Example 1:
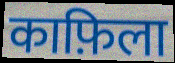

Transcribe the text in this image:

काफ़िला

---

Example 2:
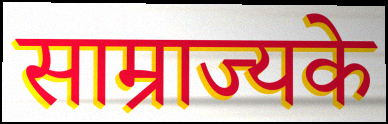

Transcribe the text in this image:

साम्राज्यके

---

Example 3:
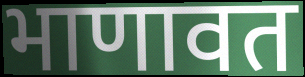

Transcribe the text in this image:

भाणावत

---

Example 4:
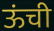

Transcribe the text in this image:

ऊंची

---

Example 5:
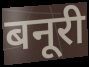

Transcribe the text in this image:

बनूरी